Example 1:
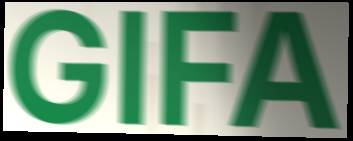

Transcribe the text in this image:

GIFA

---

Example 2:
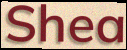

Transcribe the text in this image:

Shea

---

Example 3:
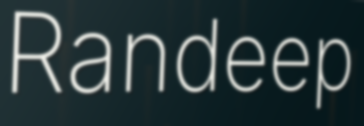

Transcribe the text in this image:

Randeep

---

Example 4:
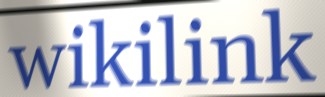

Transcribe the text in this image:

wikilink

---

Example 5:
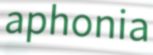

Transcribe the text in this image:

aphonia